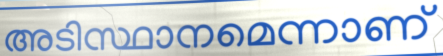
അടിസ്ഥാനമെന്നാണ്